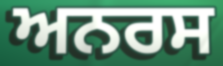
ਅਨਰਸ